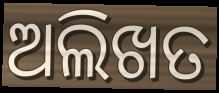
ଅଲିଖତ